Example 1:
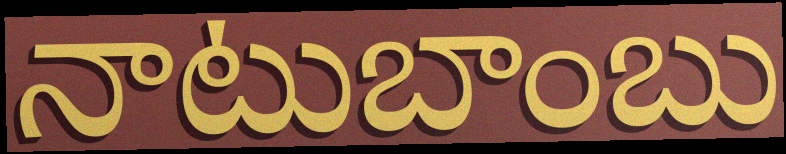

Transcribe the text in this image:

నాటుబాంబు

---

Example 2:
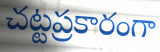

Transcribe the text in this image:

చట్టప్రకారంగా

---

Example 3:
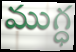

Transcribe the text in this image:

ముగ్ధ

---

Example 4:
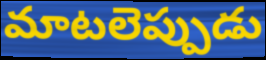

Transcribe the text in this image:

మాటలెప్పుడు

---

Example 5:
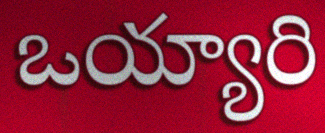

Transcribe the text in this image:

ఒయ్యారి